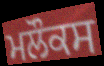
ਮਲੌਕਸ